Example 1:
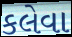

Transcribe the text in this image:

કલેવા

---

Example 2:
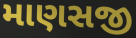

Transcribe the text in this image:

માણસજી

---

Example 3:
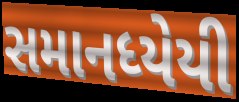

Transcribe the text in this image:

સમાનધ્યેયી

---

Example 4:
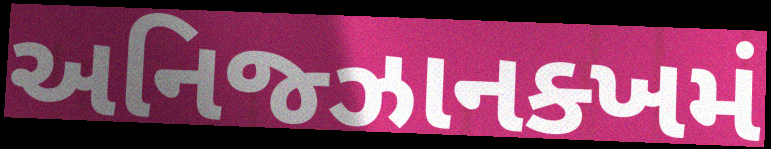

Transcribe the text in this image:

અનિજ્ઝાનક્ખમં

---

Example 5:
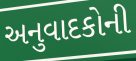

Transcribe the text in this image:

અનુવાદકોની